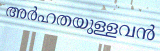
അർഹതയുള്ളവൻ